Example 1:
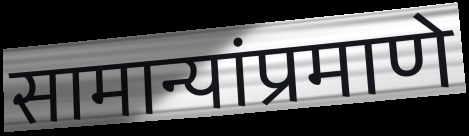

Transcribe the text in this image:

सामान्यांप्रमाणे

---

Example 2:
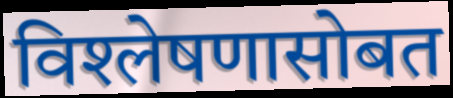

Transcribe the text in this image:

विश्लेषणासोबत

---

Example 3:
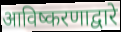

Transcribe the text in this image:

आविष्करणाद्वारे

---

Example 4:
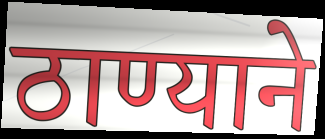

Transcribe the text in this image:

ठाण्याने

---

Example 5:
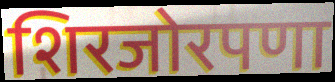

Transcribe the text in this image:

शिरजोरपणा